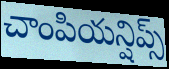
చాంపియన్షిప్స్